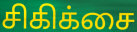
சிகிக்சை